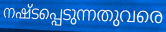
നഷ്ടപ്പെടുന്നതുവരെ